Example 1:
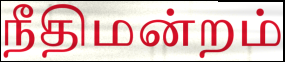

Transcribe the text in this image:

நீதிமன்றம்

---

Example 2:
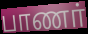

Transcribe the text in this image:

பாணர்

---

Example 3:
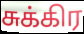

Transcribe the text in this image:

சுக்கிர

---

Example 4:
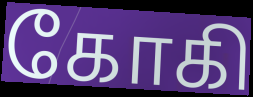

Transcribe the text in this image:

கோகி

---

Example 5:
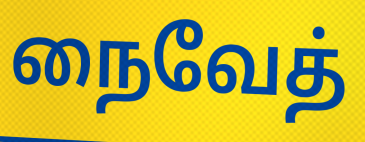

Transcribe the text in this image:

நைவேத்